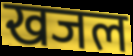
खजल